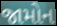
જામોન